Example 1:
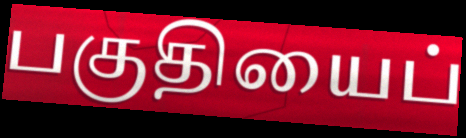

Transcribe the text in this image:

பகுதியைப்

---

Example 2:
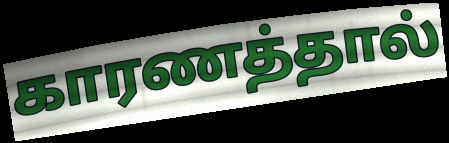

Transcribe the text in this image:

காரணத்தால்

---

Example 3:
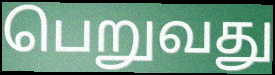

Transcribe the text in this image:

பெறுவது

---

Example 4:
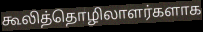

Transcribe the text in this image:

கூலித்தொழிலாளர்களாக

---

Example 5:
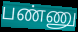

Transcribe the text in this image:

பண்ணு